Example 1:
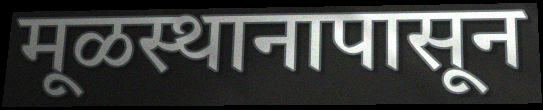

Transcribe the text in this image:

मूळस्थानापासून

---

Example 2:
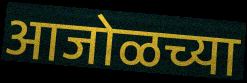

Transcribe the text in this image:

आजोळच्या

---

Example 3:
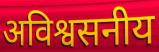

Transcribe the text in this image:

अविश्वसनीय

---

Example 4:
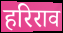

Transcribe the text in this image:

हरिराव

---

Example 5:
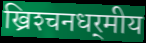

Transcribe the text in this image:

ख्रिश्चनधर्मीय